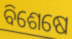
ବିଶେଷେ